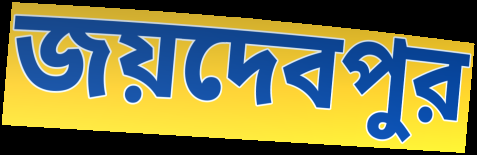
জয়দেবপুর